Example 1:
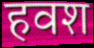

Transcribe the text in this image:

हवश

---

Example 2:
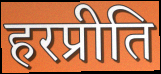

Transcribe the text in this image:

हरप्रीति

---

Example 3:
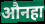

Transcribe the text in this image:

औनहा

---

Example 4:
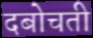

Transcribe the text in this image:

दबोचती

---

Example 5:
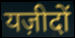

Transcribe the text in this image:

यज़ीदों